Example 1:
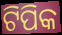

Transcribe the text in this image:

ଟିପିକ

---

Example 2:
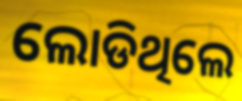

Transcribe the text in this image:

ଲୋଡିଥିଲେ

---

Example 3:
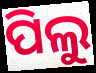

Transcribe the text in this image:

ପିଲୁ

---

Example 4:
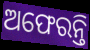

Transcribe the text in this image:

ଅଫେରନ୍ତି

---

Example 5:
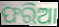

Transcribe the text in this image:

ଫରିଆ